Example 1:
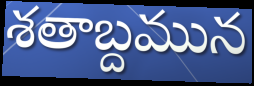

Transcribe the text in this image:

శతాబ్దమున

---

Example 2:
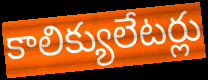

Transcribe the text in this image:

కాలిక్యులేటర్లు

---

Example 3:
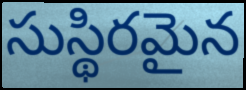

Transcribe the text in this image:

సుస్థిరమైన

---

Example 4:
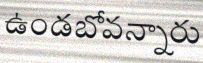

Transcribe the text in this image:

ఉండబోవన్నారు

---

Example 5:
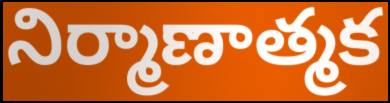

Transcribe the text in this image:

నిర్మాణాత్మక